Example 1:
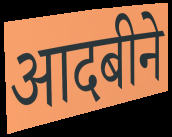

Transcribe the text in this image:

आदबीने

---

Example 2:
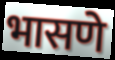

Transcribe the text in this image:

भासणे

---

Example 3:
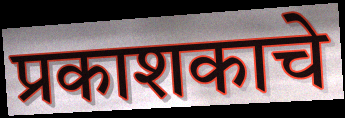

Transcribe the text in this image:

प्रकाशकाचे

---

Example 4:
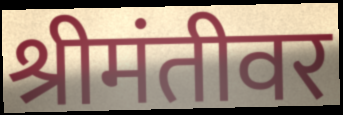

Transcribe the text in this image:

श्रीमंतीवर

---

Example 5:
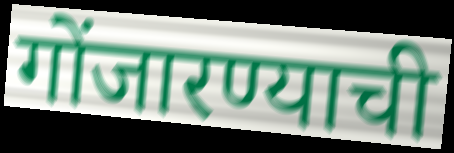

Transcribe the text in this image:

गोंजारण्याची